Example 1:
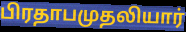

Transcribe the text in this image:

பிரதாபமுதலியார்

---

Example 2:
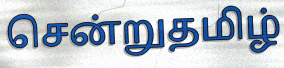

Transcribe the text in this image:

சென்றுதமிழ்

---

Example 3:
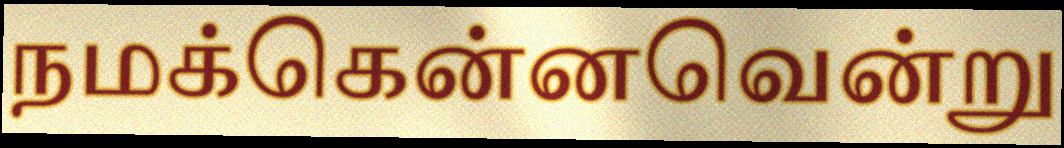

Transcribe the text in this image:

நமக்கென்னவென்று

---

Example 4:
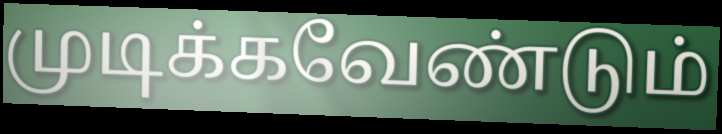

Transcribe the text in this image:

முடிக்கவேண்டும்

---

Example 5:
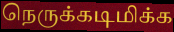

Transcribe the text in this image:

நெருக்கடிமிக்க